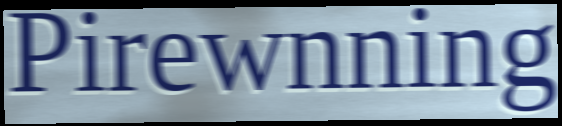
Pirewnning